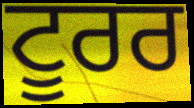
ਟੂਰਰ